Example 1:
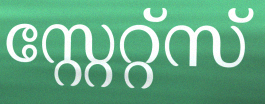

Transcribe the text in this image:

സ്റ്റേറ്റ്സ്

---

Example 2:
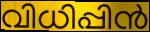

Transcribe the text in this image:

വിധിപ്പിൻ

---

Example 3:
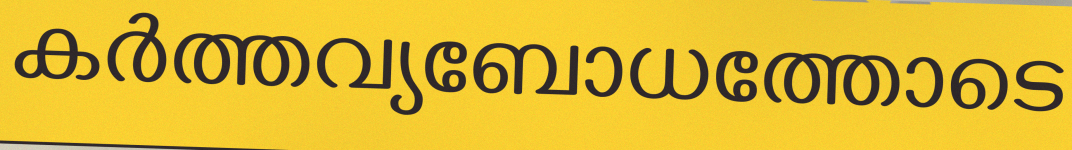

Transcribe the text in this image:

കർത്തവ്യബോധത്തോടെ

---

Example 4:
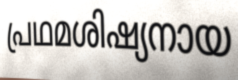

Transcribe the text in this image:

പ്രഥമശിഷ്യനായ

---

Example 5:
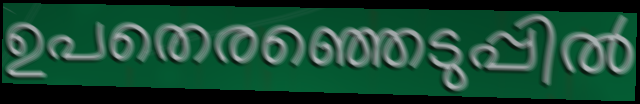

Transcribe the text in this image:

ഉപതെരഞ്ഞെടുപ്പിൽ